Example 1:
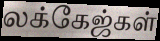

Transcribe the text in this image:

லக்கேஜ்கள்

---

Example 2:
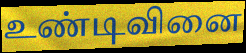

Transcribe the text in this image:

உண்டிவினை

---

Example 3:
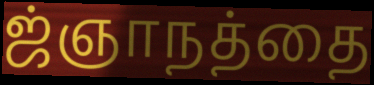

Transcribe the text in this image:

ஜ்ஞாநத்தை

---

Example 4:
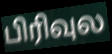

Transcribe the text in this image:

பிரிவுல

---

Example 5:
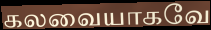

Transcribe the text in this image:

கலவையாகவே